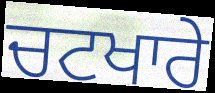
ਚਟਖਾਰੇ